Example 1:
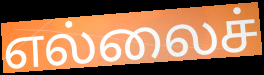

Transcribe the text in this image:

எல்லைச்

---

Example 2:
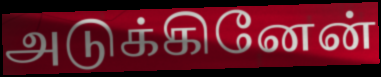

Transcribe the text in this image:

அடுக்கினேன்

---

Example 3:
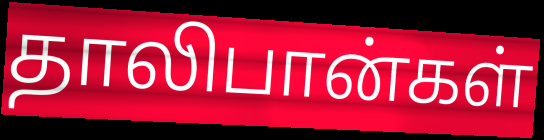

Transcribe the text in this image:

தாலிபான்கள்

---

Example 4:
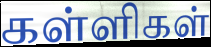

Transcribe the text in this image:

கள்ளிகள்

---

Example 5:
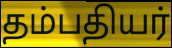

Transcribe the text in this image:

தம்பதியர்